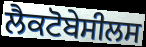
ਲੈਕਟੋਬੇਸੀਲਸ